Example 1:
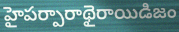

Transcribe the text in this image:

హైపర్పారాథైరాయిడిజం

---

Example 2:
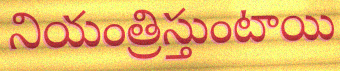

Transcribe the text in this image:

నియంత్రిస్తుంటాయి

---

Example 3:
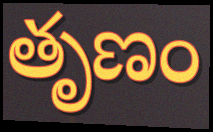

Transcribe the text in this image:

తృణం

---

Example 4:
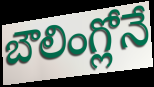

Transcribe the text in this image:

బౌలింగ్లోనే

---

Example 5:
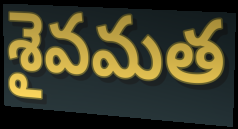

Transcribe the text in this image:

శైవమత